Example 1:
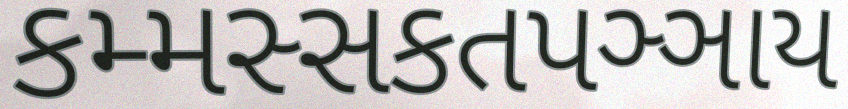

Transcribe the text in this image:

કમ્મસ્સકતપઞ્ઞાય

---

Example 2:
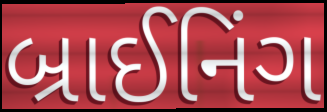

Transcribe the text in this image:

બ્રાઈનિંગ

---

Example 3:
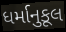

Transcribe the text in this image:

ધર્માનુકૂલ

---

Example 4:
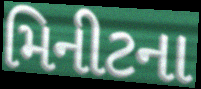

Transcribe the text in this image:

મિનીટના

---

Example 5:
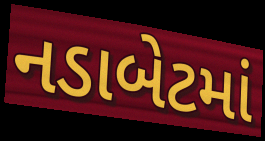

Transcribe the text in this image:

નડાબેટમાં